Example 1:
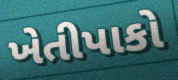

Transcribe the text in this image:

ખેતીપાકો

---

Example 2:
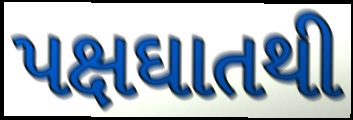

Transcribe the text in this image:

પક્ષઘાતથી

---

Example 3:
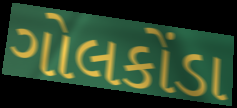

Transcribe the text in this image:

ગોલકોંડા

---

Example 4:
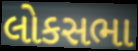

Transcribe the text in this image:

લોકસભા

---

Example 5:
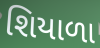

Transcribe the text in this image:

શિયાળા